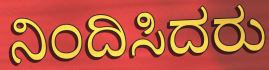
ನಿಂದಿಸಿದರು